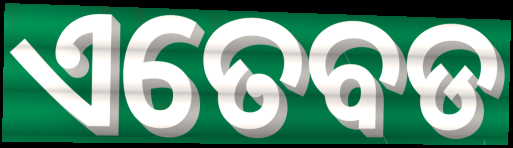
ଏତେବଡ